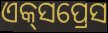
ଏକ୍‌ସପ୍ରେସ